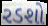
રડશો